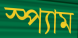
স্প্যাম